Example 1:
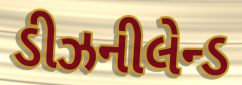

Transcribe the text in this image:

ડીઝનીલેન્ડ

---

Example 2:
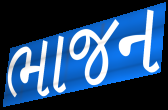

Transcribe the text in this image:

ભાજન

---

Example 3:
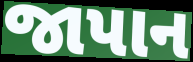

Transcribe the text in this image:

જાપાન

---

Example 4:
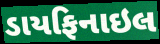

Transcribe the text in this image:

ડાયફિનાઇલ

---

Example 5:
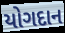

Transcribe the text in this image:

યોગદાન